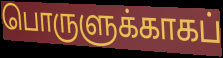
பொருளுக்காகப்